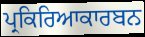
ਪ੍ਰਕਿਰਿਆਕਾਰਬਨ